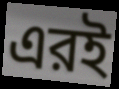
এরই